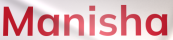
Manisha